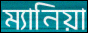
ম্যানিয়া